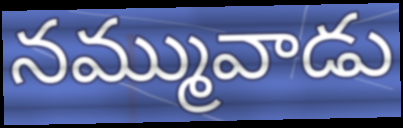
నమ్మువాడు